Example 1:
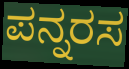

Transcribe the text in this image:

ಪನ್ನರಸ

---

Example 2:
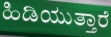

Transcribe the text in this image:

ಹಿಡಿಯುತ್ತಾರೆ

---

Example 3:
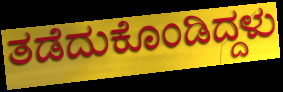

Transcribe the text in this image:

ತಡೆದುಕೊಂಡಿದ್ದಳು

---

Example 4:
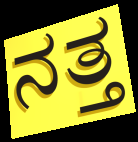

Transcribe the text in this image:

ನತ್ತ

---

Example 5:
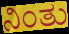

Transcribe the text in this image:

ನಿಂತು